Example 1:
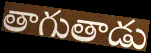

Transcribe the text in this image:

తాగుతాడు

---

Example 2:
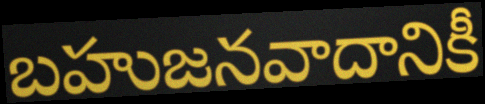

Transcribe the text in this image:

బహుజనవాదానికీ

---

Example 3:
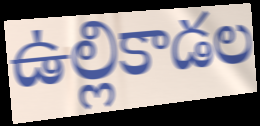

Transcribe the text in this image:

ఉల్లికాడల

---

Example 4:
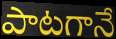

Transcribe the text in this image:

పాటగానే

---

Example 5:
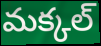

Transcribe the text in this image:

మక్కల్